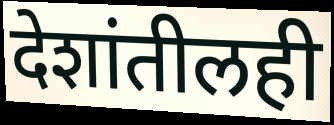
देशांतीलही